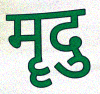
मॄदु